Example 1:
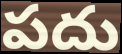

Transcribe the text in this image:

పదు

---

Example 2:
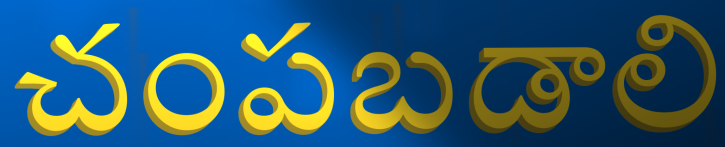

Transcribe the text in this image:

చంపబడాలి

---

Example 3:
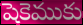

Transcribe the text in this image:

షెకెముకు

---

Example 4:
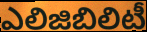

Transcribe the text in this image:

ఎలిజిబిలిటీ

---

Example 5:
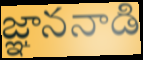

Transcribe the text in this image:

జ్ఞాననాడి